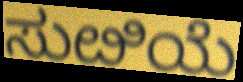
ಸುೞಿಯೆ